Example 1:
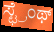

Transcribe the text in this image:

ಸ್ಟ್ರೆಂಥ್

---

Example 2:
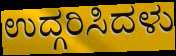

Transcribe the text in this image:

ಉದ್ಗರಿಸಿದಳು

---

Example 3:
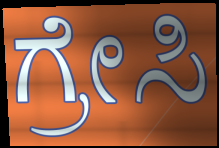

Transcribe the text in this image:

ಗ್ರೇಸಿ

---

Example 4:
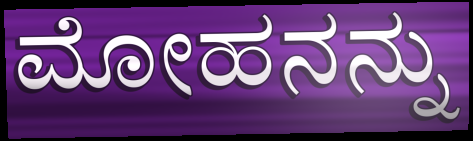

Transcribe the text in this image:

ಮೋಹನನ್ನು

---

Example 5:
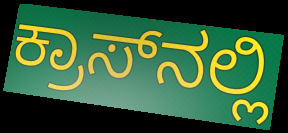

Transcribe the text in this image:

ಕ್ರಾಸ್‌ನಲ್ಲಿ